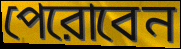
পেরোবেন